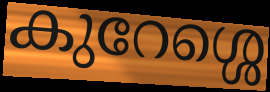
കുറേശ്ശെ